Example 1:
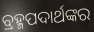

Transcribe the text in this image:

ବ୍ରହ୍ମପଦାର୍ଥଙ୍କର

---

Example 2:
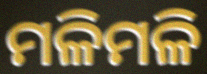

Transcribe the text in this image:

ମଳିମଳି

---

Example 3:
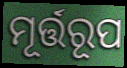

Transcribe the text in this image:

ମୂର୍ତ୍ତରୂପ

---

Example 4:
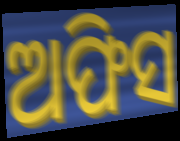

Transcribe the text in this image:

ଅଫିସ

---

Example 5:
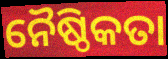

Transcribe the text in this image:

ନୈଷ୍ଠିକତା